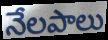
నేలపాలు